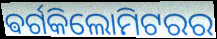
ଵର୍ଗକିଲୋମିଟରର